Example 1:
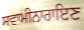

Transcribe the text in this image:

ਸਵਾਮੀਨਾਰਾਇਣ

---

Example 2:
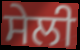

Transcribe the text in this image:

ਸੇਲੀ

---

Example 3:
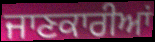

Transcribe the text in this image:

ਜਾਣਕਾਰੀਆਂ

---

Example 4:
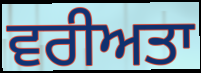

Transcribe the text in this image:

ਵਰੀਅਤਾ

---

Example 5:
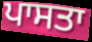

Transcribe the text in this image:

ਪਾਸਤਾ